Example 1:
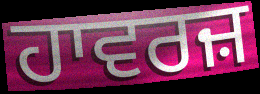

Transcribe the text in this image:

ਹਾਵਰਜ਼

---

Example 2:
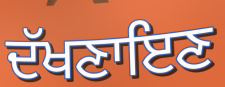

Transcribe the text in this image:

ਦੱਖਣਾਇਣ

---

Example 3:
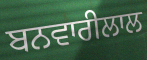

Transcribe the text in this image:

ਬਨਵਾਰੀਲਾਲ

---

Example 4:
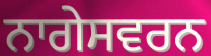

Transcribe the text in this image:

ਨਾਗੇਸਵਰਨ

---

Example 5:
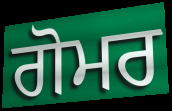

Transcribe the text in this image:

ਗੋਮਰ